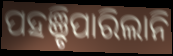
ପହଞ୍ଚିପାରିଲାନି